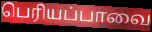
பெரியப்பாவை